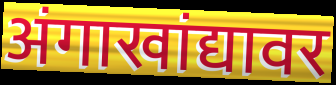
अंगाखांद्यावर